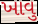
ખાવુ